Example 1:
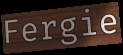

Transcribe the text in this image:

Fergie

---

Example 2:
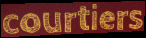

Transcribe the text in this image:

courtiers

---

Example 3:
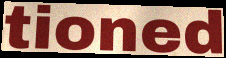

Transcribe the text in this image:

tioned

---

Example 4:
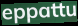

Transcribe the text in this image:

eppattu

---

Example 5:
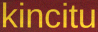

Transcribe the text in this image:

kincitu